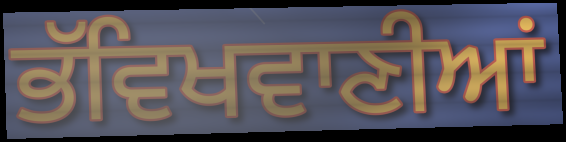
ਭੱਵਿਖਵਾਣੀਆਂ